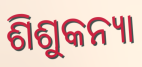
ଶିଶୁକନ୍ଯା